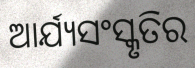
ଆର୍ଯ୍ୟସଂସ୍କୃତିର